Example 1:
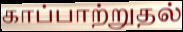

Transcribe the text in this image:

காப்பாற்றுதல்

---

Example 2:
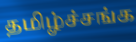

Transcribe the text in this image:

தமிழ்ச்சங்க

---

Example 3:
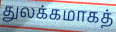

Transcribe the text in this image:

துலக்கமாகத்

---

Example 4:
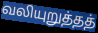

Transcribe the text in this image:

வலியுறுத்தத்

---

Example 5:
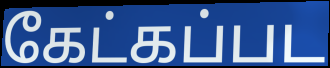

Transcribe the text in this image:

கேட்கப்பட